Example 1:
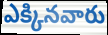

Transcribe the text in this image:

ఎక్కినవారు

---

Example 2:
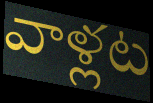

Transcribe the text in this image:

వాళ్లట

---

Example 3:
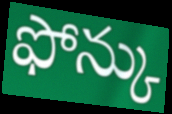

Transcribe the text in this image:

ఫోన్కు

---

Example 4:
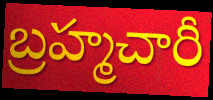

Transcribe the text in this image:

బ్రహ్మచారీ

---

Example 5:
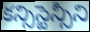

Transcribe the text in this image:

కన్సిస్టెన్సీని